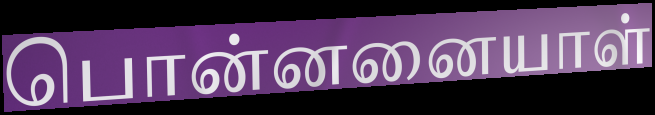
பொன்னனையாள்